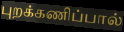
புறக்கணிப்பால்